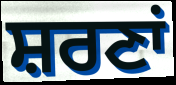
ਸ਼ਰਣਾਂ